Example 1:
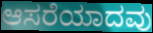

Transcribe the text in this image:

ಆಸರೆಯಾದವು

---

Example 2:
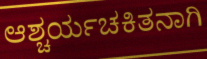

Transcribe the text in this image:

ಆಶ್ಚರ್ಯಚಕಿತನಾಗಿ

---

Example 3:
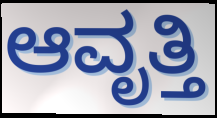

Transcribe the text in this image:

ಆವೃತ್ತಿ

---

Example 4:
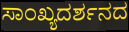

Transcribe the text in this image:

ಸಾಂಖ್ಯದರ್ಶನದ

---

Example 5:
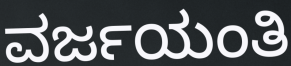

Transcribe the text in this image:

ವರ್ಜಯಂತಿ